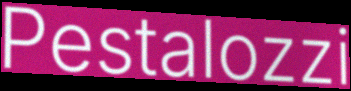
Pestalozzi